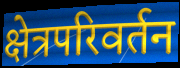
क्षेत्रपरिवर्तन